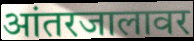
आंतरजालावर